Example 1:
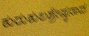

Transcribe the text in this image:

ಕುರುಕುಲಶ್ರೇಷ್ಠನಾದ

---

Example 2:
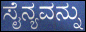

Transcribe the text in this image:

ಸೈನ್ಯವನ್ನು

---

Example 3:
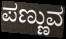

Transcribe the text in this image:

ಪಣ್ಣುವ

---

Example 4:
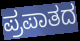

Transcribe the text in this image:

ಪ್ರಪಾತದ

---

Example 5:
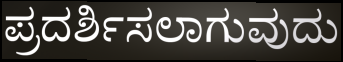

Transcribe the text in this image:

ಪ್ರದರ್ಶಿಸಲಾಗುವುದು